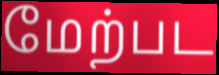
மேற்பட